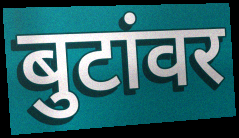
बुटांवर